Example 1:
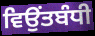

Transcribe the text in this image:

ਵਿਉਂਤਬੰਧੀ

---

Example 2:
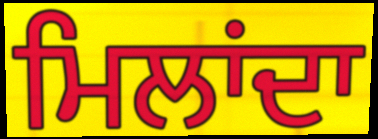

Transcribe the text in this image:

ਮਿਲਾਂਦਾ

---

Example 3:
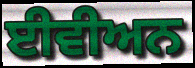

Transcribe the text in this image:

ਈਵੀਅਨ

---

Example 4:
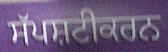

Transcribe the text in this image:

ਸੱਪਸ਼ਟੀਕਰਨ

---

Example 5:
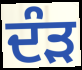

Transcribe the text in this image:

ਦੰੜ